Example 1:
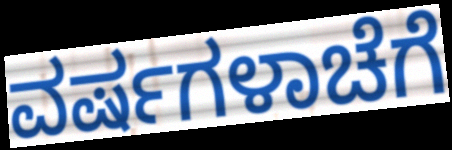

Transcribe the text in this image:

ವರ್ಷಗಳಾಚೆಗೆ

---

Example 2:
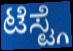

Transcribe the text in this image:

ಟೆಸ್ಟ್ಗೆ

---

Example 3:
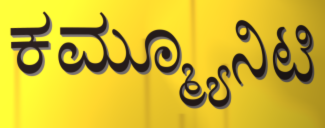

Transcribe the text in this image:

ಕಮ್ಮ್ಯೂನಿಟಿ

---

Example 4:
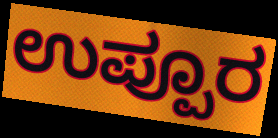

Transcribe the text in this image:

ಉಪ್ಪೂರ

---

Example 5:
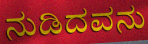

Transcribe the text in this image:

ನುಡಿದವನು